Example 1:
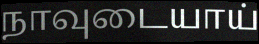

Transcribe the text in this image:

நாவுடையாய்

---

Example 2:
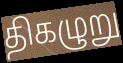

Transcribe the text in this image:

திகழுறு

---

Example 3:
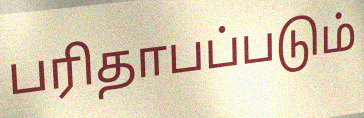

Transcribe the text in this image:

பரிதாபப்படும்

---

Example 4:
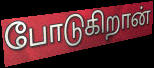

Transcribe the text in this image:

போடுகிறான்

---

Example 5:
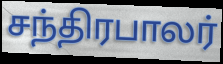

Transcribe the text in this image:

சந்திரபாலர்